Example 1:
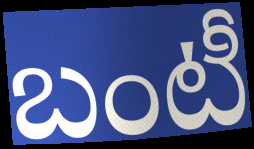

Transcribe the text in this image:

బంటీ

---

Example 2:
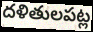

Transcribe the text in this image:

దళితులపట్ల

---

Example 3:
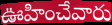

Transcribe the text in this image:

ఊహించేవారు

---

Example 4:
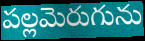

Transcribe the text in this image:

పల్లమెరుగును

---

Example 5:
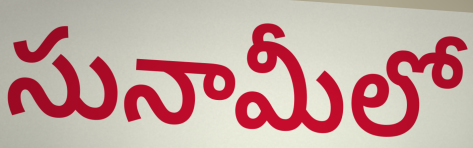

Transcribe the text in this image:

సునామీలో